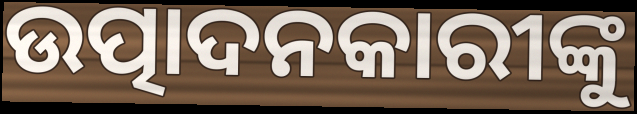
ଉତ୍ପାଦନକାରୀଙ୍କୁ